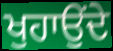
ਖੁਹਾਉਂਦੇ